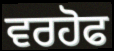
ਵਰਹੋਫ